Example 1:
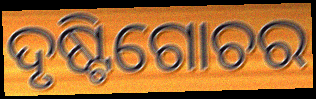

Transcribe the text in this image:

ଦୃଷ୍ଟିଗୋଚର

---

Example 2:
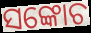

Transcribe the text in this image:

ସଙ୍କୋଚ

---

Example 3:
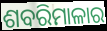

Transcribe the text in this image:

ଶବରିମାଳାର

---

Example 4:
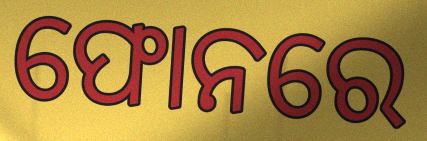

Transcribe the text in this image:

ଫୋନରେ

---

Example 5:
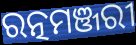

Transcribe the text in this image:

ରତ୍ନମଞ୍ଜରୀ